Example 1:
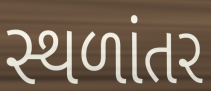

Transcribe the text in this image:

સ્થળાંતર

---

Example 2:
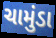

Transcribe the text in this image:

ચામુંડા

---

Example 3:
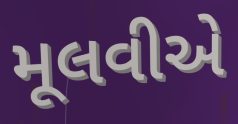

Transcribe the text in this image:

મૂલવીએ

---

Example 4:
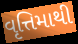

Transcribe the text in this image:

વૃત્તિમાથી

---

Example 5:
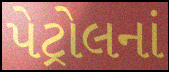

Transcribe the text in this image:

પેટ્રોલનાં